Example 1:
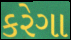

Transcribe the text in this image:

કરેગા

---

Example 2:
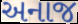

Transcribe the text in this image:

અનાજ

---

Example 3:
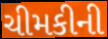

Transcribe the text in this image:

ચીમકીની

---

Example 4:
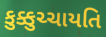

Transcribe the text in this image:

કુક્કુચ્ચાયતિ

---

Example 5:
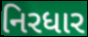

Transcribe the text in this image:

નિરધાર